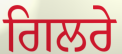
ਗਿਲਰੇ